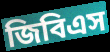
জিবিএস